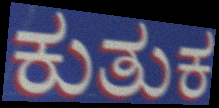
ಕುತುಕ